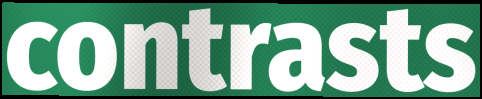
contrasts